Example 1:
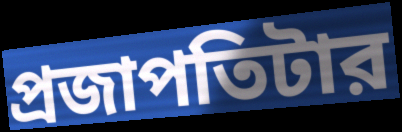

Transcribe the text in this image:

প্রজাপতিটার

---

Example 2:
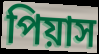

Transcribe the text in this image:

পিয়াস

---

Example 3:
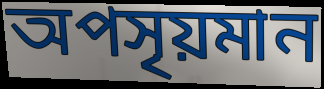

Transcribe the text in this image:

অপসৃয়মান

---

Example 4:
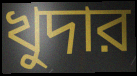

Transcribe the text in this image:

খুদার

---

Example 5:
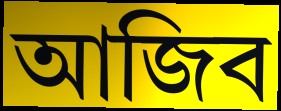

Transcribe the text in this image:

আজিব